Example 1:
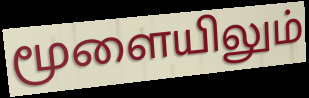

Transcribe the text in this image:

மூளையிலும்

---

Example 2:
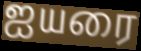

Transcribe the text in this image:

ஐயரை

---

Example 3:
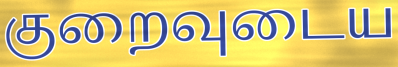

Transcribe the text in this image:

குறைவுடைய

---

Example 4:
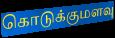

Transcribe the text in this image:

கொடுக்குமளவு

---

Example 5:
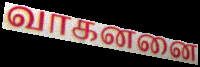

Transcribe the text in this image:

வாகனனை